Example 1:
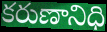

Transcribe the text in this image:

కరుణానిధి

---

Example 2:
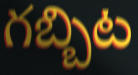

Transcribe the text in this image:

గబ్బిట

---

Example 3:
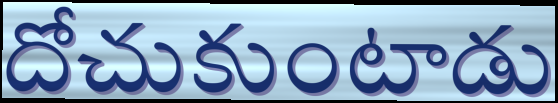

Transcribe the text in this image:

దోచుకుంటాడు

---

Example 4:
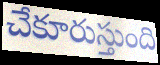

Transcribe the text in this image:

చేకూరుస్తుంది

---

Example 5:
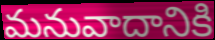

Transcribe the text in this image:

మనువాదానికి